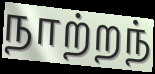
நாற்றந்